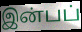
இன்பப்